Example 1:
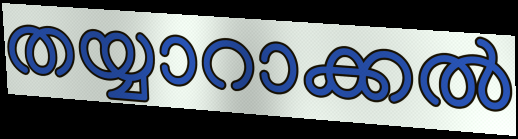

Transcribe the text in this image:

തയ്യാറാക്കൽ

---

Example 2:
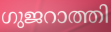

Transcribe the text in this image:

ഗുജറാത്തി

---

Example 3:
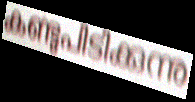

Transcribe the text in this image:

കണ്ടുപിടിക്കുന്നു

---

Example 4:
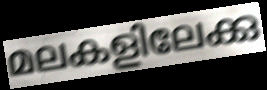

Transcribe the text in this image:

മലകളിലേക്കു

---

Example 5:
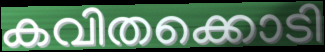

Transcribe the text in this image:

കവിതക്കൊടി